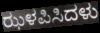
ಝಳಪಿಸಿದಳು